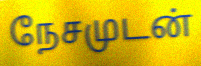
நேசமுடன்